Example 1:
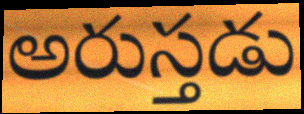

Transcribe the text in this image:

అరుస్తడు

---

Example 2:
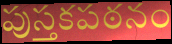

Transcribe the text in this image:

పుస్తకపఠనం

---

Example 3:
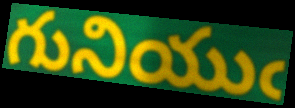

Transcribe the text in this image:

గునియుఁ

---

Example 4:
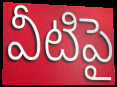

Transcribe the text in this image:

వీటిపై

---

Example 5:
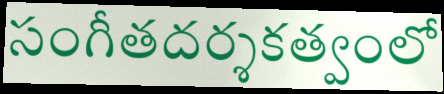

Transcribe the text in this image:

సంగీతదర్శకత్వంలో